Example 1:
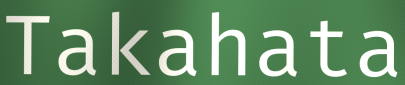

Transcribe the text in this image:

Takahata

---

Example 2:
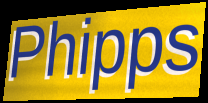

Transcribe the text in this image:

Phipps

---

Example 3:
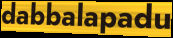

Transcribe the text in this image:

dabbalapadu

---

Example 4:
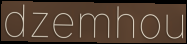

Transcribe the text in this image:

dzemhou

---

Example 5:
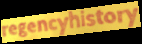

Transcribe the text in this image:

regencyhistory